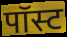
पॉस्ट